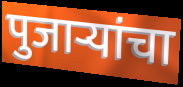
पुजाऱ्यांचा